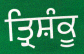
ਤ੍ਰਿਸ਼ੰਕੂ